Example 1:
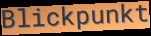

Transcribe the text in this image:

Blickpunkt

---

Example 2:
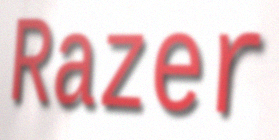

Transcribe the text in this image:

Razer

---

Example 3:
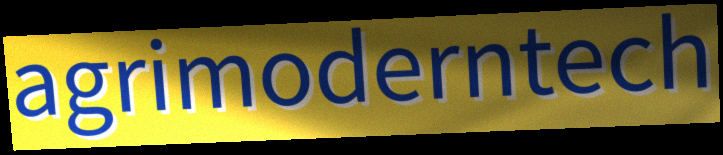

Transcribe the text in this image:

agrimoderntech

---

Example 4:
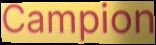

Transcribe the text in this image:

Campion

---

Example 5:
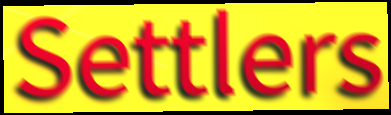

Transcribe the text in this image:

Settlers